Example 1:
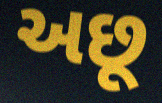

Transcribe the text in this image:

અછૂ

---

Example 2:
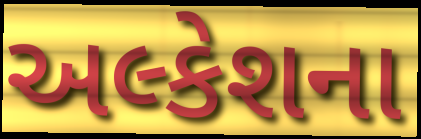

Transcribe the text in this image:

અલ્કેશના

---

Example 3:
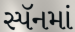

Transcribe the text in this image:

સ્પૅનમાં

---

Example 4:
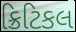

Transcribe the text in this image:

ક્રિટિકલ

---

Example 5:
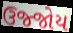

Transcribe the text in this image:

ઉજ્જોય